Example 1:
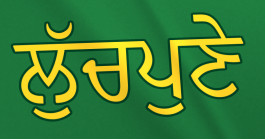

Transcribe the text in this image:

ਲੁੱਚਪੁਣੇ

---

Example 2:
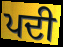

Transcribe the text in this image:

ਪਦੀ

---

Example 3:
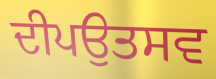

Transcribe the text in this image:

ਦੀਪਉਤਸਵ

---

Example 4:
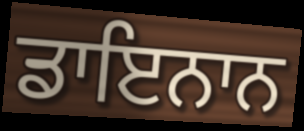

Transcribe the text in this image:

ਡਾਇਨਾਨ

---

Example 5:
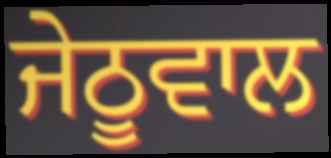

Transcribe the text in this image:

ਜੇਠੂਵਾਲ